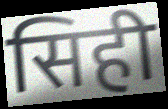
सिही